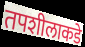
तपशीलाकडे